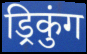
ड्रिकुंग